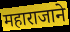
महाराजाने